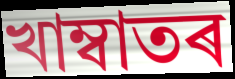
খাম্বাতৰ